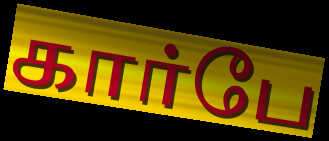
கார்பே